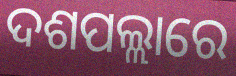
ଦଶପଲ୍ଲାରେ